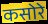
कसोरे